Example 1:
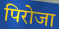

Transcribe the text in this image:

पिरोजा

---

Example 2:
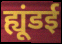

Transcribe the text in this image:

ह्यूंडई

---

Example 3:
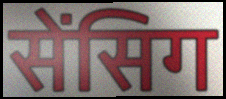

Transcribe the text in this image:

सेंसिग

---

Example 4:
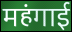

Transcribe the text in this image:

महंगाई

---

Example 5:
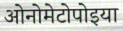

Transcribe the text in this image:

ओनोमेटोपोइया